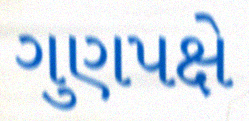
ગુણપક્ષે